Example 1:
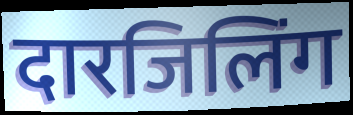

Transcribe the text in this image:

दारजिलिंग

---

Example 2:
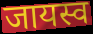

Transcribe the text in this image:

जायस्व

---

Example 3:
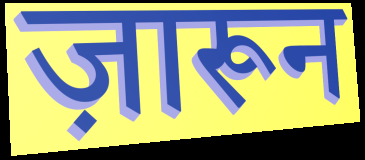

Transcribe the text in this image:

ज़ारून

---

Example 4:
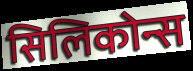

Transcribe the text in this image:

सिलिकोन्स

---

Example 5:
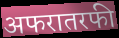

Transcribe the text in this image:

अफरातरफी